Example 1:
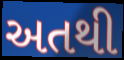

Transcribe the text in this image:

અતથી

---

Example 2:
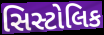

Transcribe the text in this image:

સિસ્ટોલિક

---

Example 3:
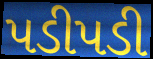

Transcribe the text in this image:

પડીપડી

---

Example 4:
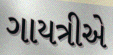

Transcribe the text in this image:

ગાયત્રીએ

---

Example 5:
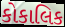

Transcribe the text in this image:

કોકાલિક